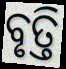
ବୃତ୍ତି